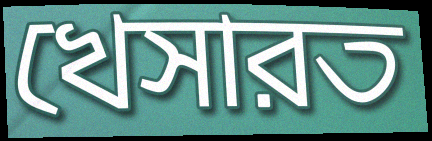
খেসারত